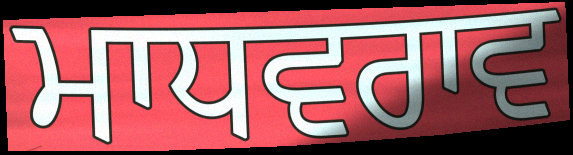
ਮਾਧਵਰਾਵ